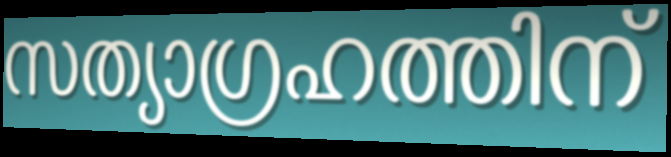
സത്യാഗ്രഹത്തിന്